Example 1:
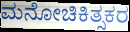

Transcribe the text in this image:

ಮನೋಚಿಕಿತ್ಸಕರ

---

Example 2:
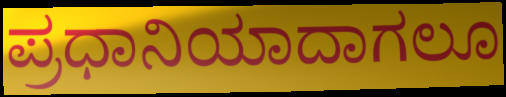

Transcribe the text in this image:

ಪ್ರಧಾನಿಯಾದಾಗಲೂ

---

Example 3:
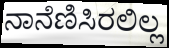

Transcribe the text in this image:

ನಾನೆಣಿಸಿರಲಿಲ್ಲ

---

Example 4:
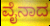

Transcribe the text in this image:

ವೈನಾದ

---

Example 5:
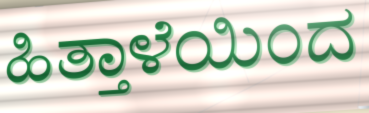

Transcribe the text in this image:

ಹಿತ್ತಾಳೆಯಿಂದ